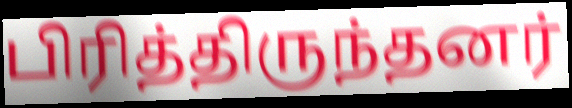
பிரித்திருந்தனர்